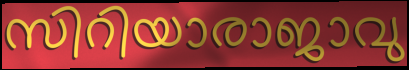
സിറിയാരാജാവു